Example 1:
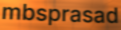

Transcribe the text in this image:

mbsprasad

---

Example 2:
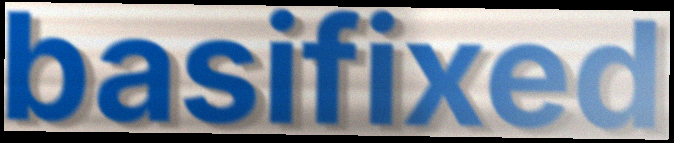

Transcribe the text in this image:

basifixed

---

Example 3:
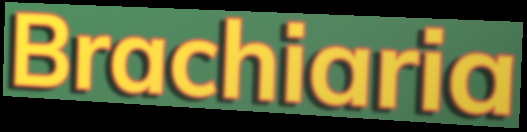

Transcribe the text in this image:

Brachiaria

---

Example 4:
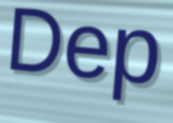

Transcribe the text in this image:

Dep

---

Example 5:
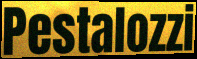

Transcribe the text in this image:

Pestalozzi